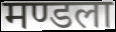
मण्डला